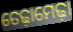
ତେଢ଼ାମେଢ଼ା